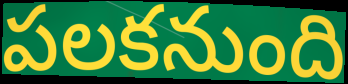
పలకనుంది